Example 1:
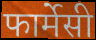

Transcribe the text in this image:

फार्मेसी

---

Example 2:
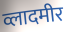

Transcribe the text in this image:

व्लादमीर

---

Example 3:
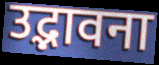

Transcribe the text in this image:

उद्भावना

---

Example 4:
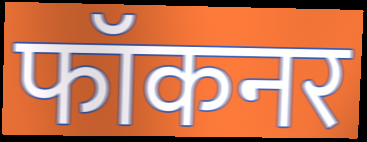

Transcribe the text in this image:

फॉकनर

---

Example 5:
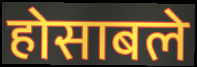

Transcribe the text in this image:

होसाबले